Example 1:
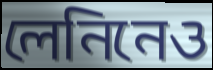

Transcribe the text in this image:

লেনিনেও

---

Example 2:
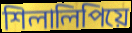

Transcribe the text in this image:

শিলালিপিয়ে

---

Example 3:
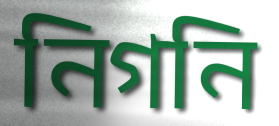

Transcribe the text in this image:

নিগনি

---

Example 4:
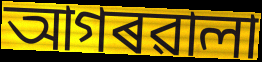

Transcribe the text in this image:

আগৰৱালা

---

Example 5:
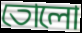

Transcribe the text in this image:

তোলো